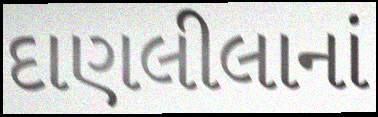
દાણલીલાનાં